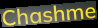
Chashme